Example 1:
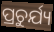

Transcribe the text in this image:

ପ୍ରଚୁର୍ଯ୍ୟ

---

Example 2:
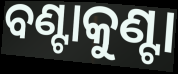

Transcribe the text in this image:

ବଣ୍ଟାକୁଣ୍ଟା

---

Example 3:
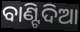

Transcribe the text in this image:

ବାଣ୍ଟିଦିଆ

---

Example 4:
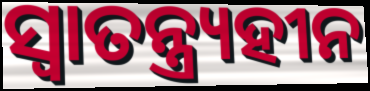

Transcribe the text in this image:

ସ୍ଵାତନ୍ତ୍ର୍ୟହୀନ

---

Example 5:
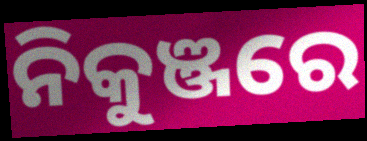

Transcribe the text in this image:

ନିକୁଞ୍ଜରେ